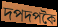
দপদপকৈ